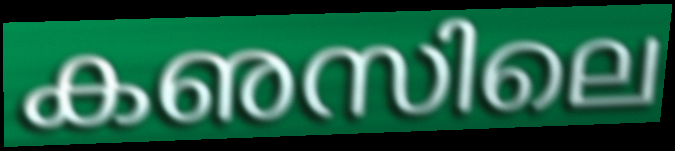
കഌസിലെ